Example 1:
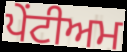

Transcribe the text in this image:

ਪੇਂਟੀਅਮ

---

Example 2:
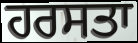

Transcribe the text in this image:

ਹਰਸਤਾ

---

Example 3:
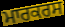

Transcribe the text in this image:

ਮਾਰਕਰਸ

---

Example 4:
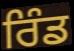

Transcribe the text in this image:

ਰਿੰਡ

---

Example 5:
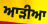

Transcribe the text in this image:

ਆੜੀਆ